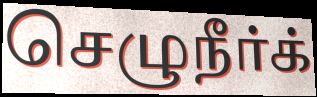
செழுநீர்க்